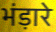
भंड़ारे